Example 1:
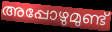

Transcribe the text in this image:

അപ്പോഴുമുണ്ട്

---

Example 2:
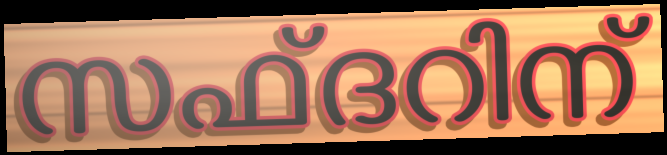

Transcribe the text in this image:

സഫ്ദറിന്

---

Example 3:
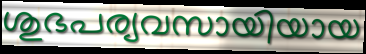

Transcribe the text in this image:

ശുഭപര്യവസായിയായ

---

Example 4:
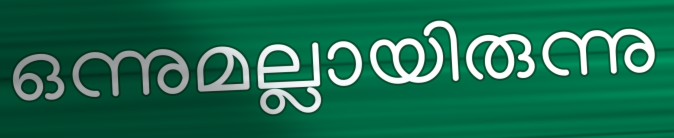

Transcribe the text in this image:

ഒന്നുമല്ലായിരുന്നു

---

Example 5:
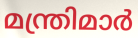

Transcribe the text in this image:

മന്ത്രിമാർ